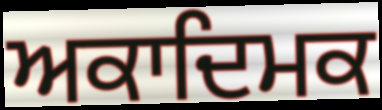
ਅਕਾਦਿਮਕ